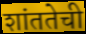
शांततेची